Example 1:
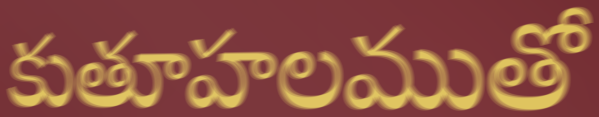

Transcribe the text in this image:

కుతూహలముతో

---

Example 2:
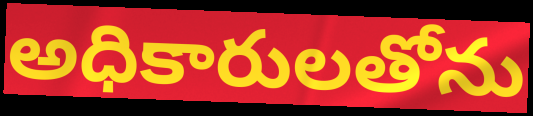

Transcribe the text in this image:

అధికారులతోను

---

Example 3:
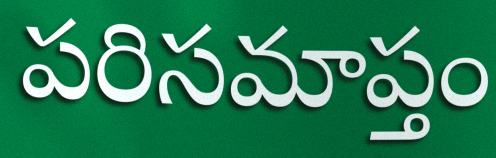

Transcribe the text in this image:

పరిసమాప్తం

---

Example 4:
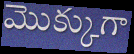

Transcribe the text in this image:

మొక్కుగా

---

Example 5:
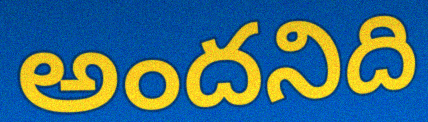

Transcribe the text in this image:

అందనిది